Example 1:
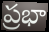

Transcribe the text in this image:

ప్రభా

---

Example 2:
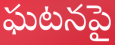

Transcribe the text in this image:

ఘటనపై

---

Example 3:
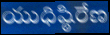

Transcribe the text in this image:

యుధిష్ఠిరేణ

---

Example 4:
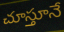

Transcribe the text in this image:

చూస్తూనే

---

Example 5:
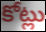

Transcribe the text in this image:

కోట్లు